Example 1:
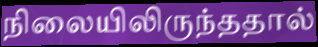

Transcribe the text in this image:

நிலையிலிருந்ததால்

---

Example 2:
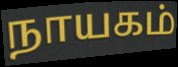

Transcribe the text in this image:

நாயகம்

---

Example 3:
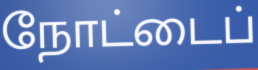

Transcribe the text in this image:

நோட்டைப்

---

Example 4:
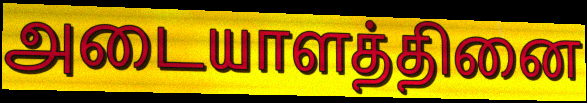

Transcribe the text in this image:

அடையாளத்தினை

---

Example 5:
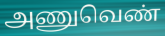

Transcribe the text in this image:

அணுவெண்